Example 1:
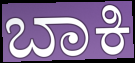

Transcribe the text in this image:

ಬಾಕಿ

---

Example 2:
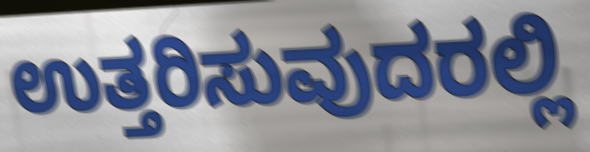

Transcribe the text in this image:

ಉತ್ತರಿಸುವುದರಲ್ಲಿ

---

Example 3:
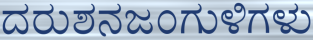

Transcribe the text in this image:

ದರುಶನಜಂಗುಳಿಗಳು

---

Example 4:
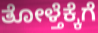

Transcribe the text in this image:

ತೋಳ್ತೆಕ್ಕೆಗೆ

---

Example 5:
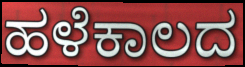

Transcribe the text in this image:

ಹಳೆಕಾಲದ